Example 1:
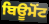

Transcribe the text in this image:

ਬਿਊਮੋਂਟ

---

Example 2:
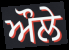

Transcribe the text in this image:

ਔਲੇ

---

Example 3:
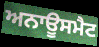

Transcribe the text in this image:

ਅਨਾਊਸਮੈਟ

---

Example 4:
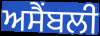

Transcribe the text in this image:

ਅਸੈਂਬਲੀ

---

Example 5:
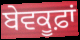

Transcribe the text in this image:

ਬੇਵਕੂਫ਼ਾਂ